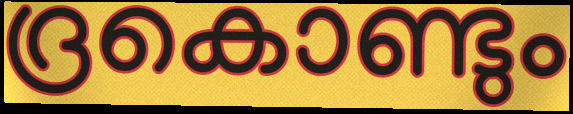
ദ്രകൊണ്ടും